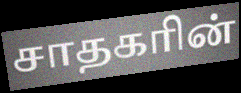
சாதகரின்